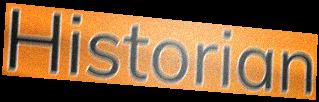
Historian